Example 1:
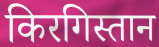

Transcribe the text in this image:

किरगिस्तान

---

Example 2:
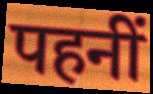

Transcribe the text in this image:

पहनीं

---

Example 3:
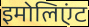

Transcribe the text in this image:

इमोलिएंट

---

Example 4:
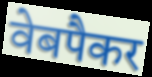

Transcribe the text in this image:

वेबपैकर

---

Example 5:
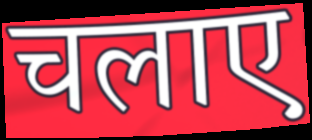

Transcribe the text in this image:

चलाए